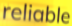
reliable